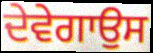
ਦੇਵੇਗਾਉਸ